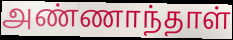
அண்ணாந்தாள்